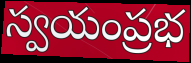
స్వయంప్రభ